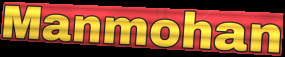
Manmohan